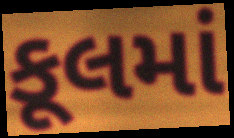
કૂલમાં